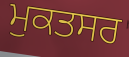
ਮੁਕਤਸਰ